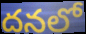
దనలో